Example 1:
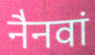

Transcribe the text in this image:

नैनवां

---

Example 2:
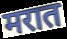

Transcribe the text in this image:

मरात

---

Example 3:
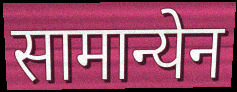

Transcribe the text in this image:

सामान्येन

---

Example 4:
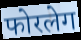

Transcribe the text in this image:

फोरलेग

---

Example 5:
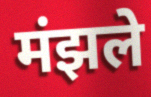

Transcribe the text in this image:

मंझले